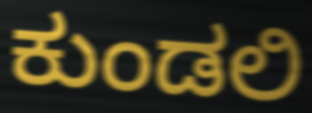
ಕುಂಡಲಿ